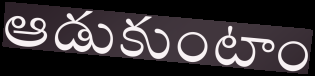
ఆడుకుంటాం